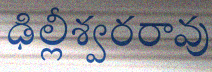
ఢిల్లీశ్వరరావు